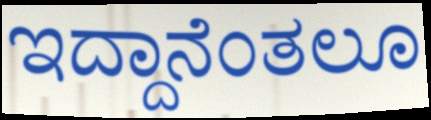
ಇದ್ದಾನೆಂತಲೂ